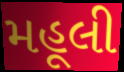
મહૂલી